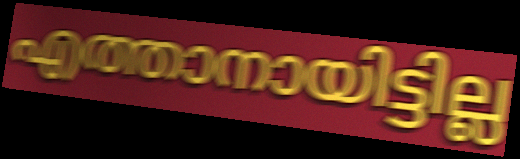
എത്താനായിട്ടില്ല